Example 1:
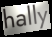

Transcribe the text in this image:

hally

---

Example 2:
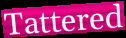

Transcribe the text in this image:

Tattered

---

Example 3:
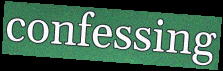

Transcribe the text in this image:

confessing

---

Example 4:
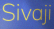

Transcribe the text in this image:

Sivaji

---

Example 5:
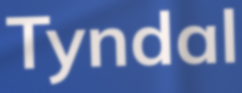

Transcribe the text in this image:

Tyndal